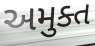
અમુક્ત